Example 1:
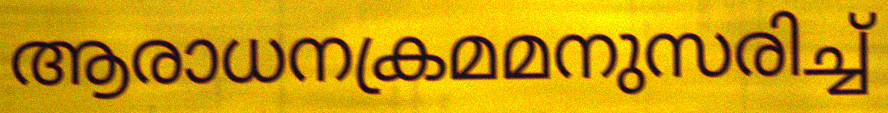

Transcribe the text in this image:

ആരാധനക്രമമനുസരിച്ച്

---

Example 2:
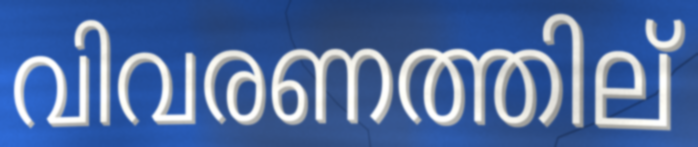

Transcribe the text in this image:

വിവരണത്തില്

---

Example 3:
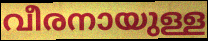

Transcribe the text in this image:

വീരനായുള്ള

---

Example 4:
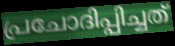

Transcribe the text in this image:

പ്രചോദിപ്പിച്ചത്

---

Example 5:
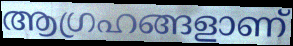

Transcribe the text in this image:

ആഗ്രഹങ്ങളാണ്